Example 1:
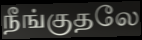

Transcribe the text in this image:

நீங்குதலே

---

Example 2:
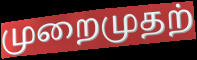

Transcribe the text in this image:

முறைமுதற்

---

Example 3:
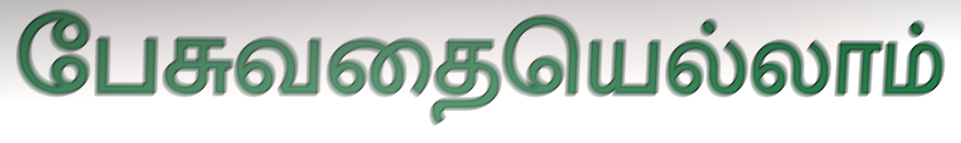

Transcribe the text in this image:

பேசுவதையெல்லாம்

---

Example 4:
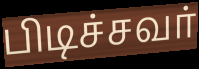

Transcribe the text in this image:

பிடிச்சவர்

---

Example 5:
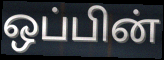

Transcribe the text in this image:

ஒப்பின்